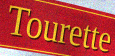
Tourette